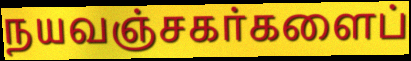
நயவஞ்சகர்களைப்